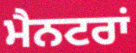
ਮੈਨਟਰਾਂ